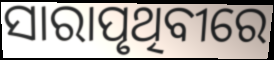
ସାରାପୃଥିବୀରେ